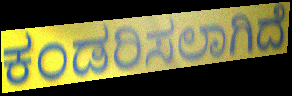
ಕಂಡರಿಸಲಾಗಿದೆ